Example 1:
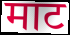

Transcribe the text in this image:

माट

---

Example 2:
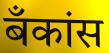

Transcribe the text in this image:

बँकांस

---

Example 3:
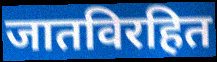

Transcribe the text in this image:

जातविरहित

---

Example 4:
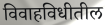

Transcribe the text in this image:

विवाहविधीतील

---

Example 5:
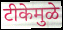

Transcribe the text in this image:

टीकेमुळे